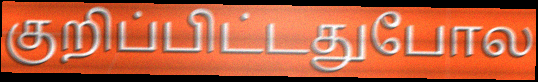
குறிப்பிட்டதுபோல